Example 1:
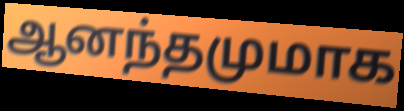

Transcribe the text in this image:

ஆனந்தமுமாக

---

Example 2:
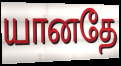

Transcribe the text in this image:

யானதே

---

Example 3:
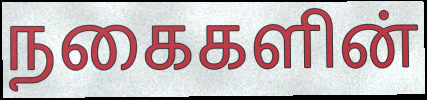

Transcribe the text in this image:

நகைகளின்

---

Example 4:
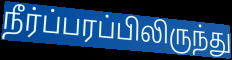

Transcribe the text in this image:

நீர்ப்பரப்பிலிருந்து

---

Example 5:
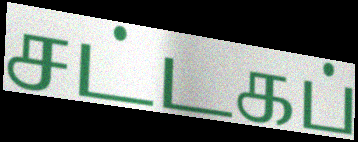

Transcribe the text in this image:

சட்டகப்